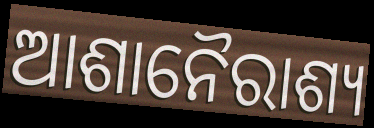
ଆଶାନୈରାଶ୍ୟ